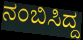
ನಂಬಿಸಿದ್ದ